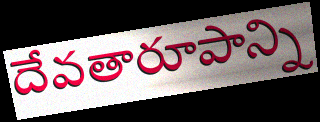
దేవతారూపాన్ని